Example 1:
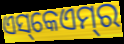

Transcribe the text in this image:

ଏସ୍‌କେଏମ୍‌ର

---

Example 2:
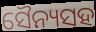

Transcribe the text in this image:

ସୈନ୍ୟସହ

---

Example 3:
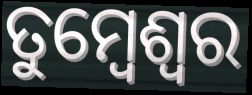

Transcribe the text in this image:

ତୁମ୍ବେଶ୍ଵର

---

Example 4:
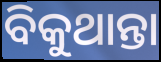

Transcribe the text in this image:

ବିକୁଥାନ୍ତା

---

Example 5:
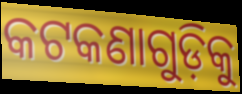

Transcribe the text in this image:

କଟକଣାଗୁଡ଼ିକୁ